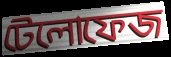
টেলোফেজ